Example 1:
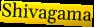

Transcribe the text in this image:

Shivagama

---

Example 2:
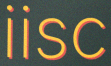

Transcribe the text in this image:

iisc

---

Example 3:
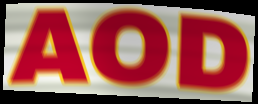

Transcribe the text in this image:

AOD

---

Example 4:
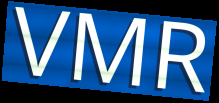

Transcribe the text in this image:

VMR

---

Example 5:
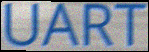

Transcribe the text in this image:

UART